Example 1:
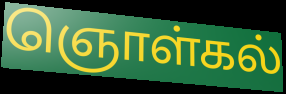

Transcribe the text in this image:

ஞொள்கல்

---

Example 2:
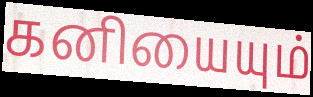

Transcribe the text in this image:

கனியையும்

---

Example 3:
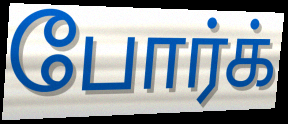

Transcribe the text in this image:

போர்க்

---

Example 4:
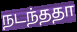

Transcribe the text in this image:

நடந்ததா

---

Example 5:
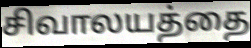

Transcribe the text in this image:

சிவாலயத்தை